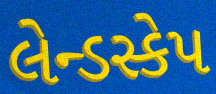
લેન્ડસ્કેપ